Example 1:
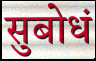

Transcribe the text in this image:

सुबोधं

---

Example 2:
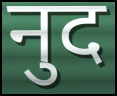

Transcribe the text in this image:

नुद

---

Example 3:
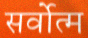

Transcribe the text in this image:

सर्वोत्म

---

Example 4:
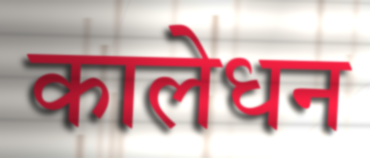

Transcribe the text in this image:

कालेधन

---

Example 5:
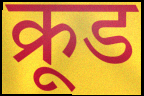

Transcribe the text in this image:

क्रूड